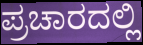
ಪ್ರಚಾರದಲ್ಲಿ